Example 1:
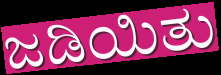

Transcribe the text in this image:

ಜಡಿಯಿತು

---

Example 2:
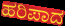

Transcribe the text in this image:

ಹರಿಪಾದ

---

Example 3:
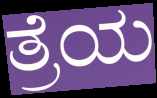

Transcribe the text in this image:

ತ್ರೆಯ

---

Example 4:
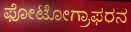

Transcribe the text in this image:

ಫೋಟೋಗ್ರಾಫರನ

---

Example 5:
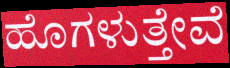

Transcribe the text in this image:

ಹೊಗಳುತ್ತೇವೆ